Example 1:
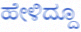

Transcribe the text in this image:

ಹೇಳಿದ್ದೂ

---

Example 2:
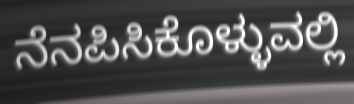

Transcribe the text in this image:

ನೆನಪಿಸಿಕೊಳ್ಳುವಲ್ಲಿ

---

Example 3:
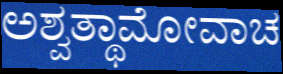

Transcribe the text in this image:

ಅಶ್ವತ್ಥಾಮೋವಾಚ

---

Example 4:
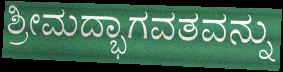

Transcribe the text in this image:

ಶ್ರೀಮದ್ಭಾಗವತವನ್ನು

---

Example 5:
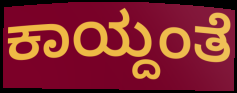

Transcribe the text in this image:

ಕಾಯ್ದಂತೆ